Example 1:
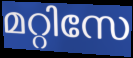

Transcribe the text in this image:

മറ്റിസേ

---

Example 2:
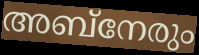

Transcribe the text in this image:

അബ്നേരും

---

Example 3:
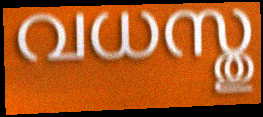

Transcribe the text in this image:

വധസ്തു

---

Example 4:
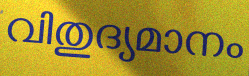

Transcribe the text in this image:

വിതുദ്യമാനം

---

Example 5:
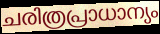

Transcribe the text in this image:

ചരിത്രപ്രാധാന്യം